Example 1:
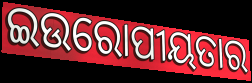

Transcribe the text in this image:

ଇଉରୋପୀୟତାର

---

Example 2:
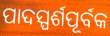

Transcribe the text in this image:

ପାଦସ୍ପର୍ଶପୂର୍ବକ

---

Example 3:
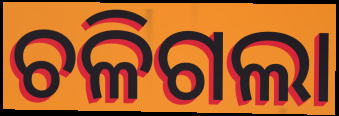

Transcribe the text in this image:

ଚଳିଗଲା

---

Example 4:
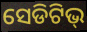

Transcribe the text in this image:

ସେଡିଟିଭ୍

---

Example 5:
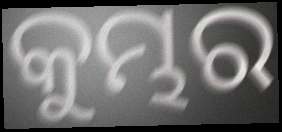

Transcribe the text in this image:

କୁମ୍ଭର